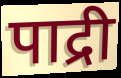
पाद्री